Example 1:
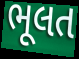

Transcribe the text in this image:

ભૂલત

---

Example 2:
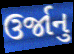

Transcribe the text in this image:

ઉર્જાનુ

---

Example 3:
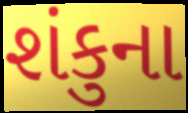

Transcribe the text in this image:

શંકુના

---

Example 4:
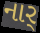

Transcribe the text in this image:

નાર્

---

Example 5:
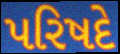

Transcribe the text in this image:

પરિષદે